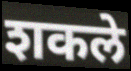
शकले